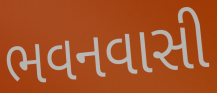
ભવનવાસી